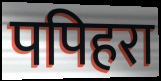
पपिहरा